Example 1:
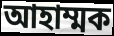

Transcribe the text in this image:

আহাম্মক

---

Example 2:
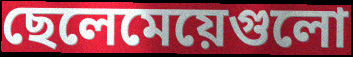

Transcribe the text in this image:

ছেলেমেয়েগুলো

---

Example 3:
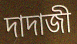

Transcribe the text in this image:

দাদাজী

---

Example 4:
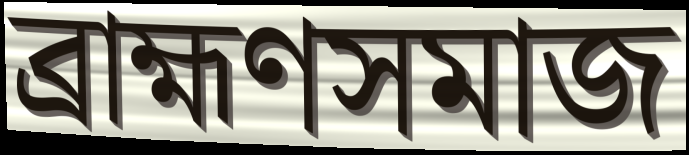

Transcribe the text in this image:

ব্রাহ্মণসমাজ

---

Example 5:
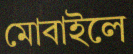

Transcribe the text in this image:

মোবাইলে